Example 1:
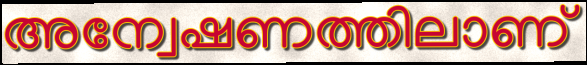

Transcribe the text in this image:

അന്വേഷണത്തിലാണ്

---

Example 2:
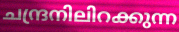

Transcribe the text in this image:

ചന്ദ്രനിലിറക്കുന്ന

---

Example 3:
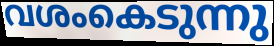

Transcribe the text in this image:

വശംകെടുന്നു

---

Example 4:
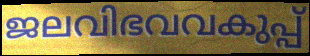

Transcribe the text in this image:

ജലവിഭവവകുപ്പ്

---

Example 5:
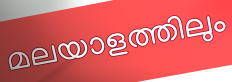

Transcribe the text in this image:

മലയാളത്തിലും